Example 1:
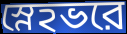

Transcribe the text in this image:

স্নেহভরে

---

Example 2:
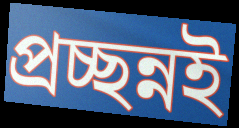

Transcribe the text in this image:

প্রচ্ছন্নই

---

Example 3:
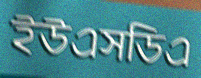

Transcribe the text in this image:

ইউএসডিএ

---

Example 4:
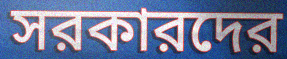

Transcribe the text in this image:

সরকারদের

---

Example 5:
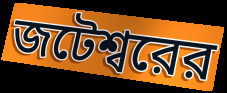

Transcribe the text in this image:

জটেশ্বরের